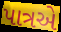
પાત્રએ